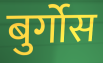
बुर्गोस